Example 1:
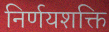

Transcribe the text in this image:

निर्णयशक्ति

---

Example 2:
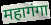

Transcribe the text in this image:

महागंगा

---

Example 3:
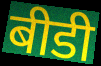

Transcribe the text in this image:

बीडी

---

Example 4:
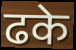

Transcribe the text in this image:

ढके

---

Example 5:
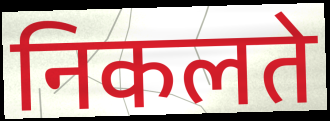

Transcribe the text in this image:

निकलते